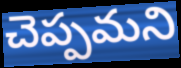
చెప్పమని